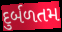
દુર્બળતમ